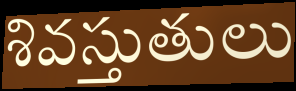
శివస్తుతులు